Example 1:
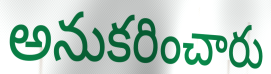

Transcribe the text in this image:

అనుకరించారు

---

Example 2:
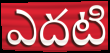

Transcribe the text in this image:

ఎదటి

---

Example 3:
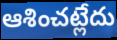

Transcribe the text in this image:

ఆశించట్లేదు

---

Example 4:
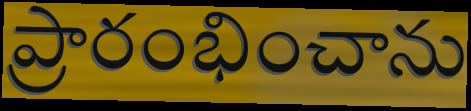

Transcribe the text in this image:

ప్రారంభించాను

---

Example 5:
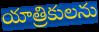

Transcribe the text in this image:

యాత్రికులను